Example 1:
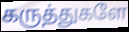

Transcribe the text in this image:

கருத்துகளே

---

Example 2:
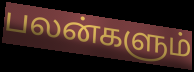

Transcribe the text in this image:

பலன்களும்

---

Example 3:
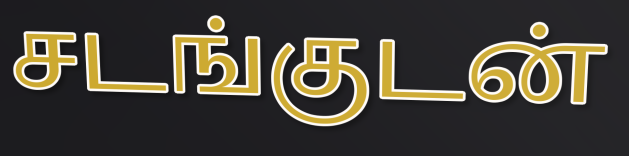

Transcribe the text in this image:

சடங்குடன்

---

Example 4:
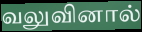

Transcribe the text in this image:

வலுவினால்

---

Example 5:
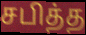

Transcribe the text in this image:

சபித்த